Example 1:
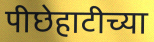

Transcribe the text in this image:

पीछेहाटीच्या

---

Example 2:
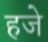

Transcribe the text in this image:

हजे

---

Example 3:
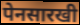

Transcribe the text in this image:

पेनसारखी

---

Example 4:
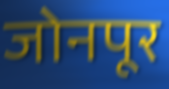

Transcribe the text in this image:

जोनपूर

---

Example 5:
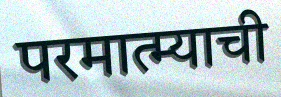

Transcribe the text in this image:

परमात्म्याची